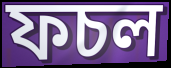
ফচল